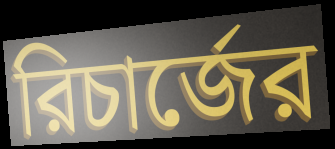
রিচার্জের